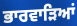
ਭਾਰਵਾੜਿਆਂ